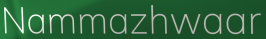
Nammazhwaar